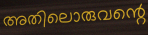
അതിലൊരുവന്റെ